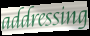
addressing